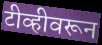
टीव्हीवरून